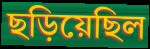
ছড়িয়েছিল